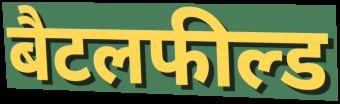
बैटलफील्ड